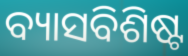
ବ୍ୟାସବିଶିଷ୍ଟ